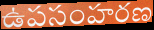
ఉపసంహరణ